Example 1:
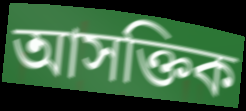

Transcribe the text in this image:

আসক্তিক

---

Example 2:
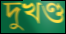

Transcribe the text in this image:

দুখণ্ড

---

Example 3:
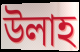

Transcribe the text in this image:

উলাহ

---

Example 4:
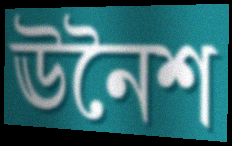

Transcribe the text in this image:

ঊনৈশ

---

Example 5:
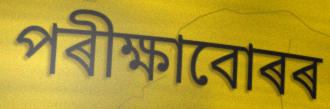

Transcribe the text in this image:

পৰীক্ষাবোৰৰ